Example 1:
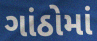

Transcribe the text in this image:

ગાંઠોમાં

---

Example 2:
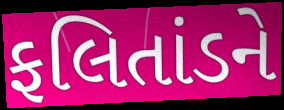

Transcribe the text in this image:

ફલિતાંડને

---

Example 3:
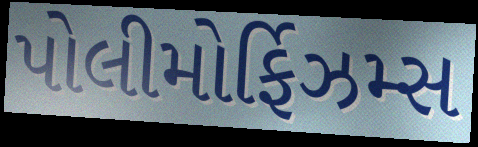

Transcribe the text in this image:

પોલીમોર્ફિઝમ્સ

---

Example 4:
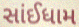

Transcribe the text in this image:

સાંઈધામ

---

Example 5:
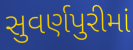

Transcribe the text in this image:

સુવર્ણપુરીમાં